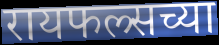
रायफल्सच्या